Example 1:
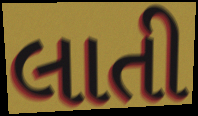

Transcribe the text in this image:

લાતી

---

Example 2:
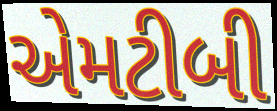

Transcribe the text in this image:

એમટીબી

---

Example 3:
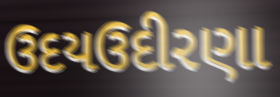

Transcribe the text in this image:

ઉદયઉદીરણા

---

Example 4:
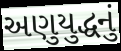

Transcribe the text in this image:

અણુયુદ્ધનું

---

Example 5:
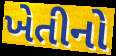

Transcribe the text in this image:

ખેતીનો